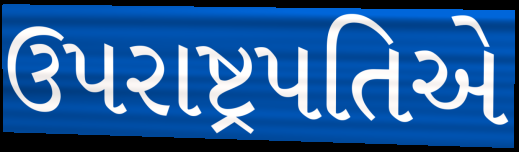
ઉપરાષ્ટ્રપતિએ